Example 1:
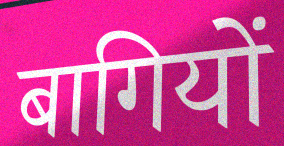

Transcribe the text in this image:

बागियों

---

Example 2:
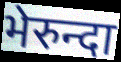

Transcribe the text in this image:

भेरुन्दा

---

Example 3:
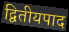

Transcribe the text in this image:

द्वितीयपाद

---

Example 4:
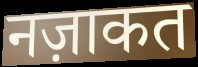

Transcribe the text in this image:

नज़ाकत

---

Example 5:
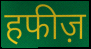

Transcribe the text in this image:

हफीज़